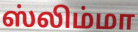
ஸ்லிம்மா